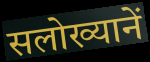
सलोख्यानें